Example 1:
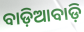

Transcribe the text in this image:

ବାଡ଼ିଆବାଡ଼ି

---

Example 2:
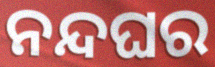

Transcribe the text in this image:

ନନ୍ଦଘର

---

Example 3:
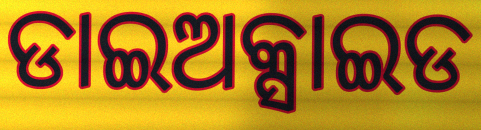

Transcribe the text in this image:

ଡାଇଅକ୍ସାଇଡ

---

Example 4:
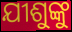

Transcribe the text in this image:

ଯୀଶୁଙ୍କୁ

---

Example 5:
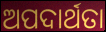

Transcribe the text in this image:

ଅପଦାର୍ଥତା